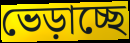
ভেড়াচ্ছে